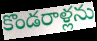
కొండరాళ్లను